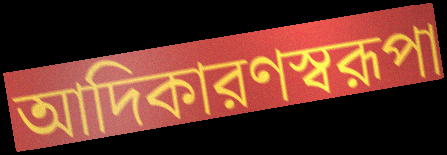
আদিকারণস্বরূপা